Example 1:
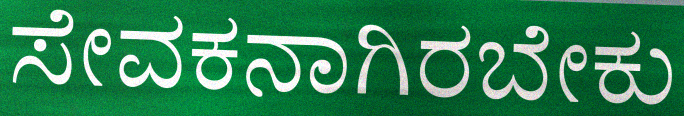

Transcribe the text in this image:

ಸೇವಕನಾಗಿರಬೇಕು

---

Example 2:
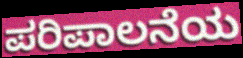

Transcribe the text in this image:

ಪರಿಪಾಲನೆಯ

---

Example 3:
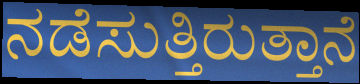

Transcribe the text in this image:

ನಡೆಸುತ್ತಿರುತ್ತಾನೆ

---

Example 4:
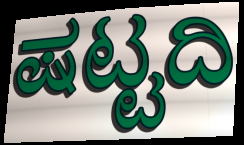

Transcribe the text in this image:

ಷಟ್ಟದಿ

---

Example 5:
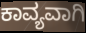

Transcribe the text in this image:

ಕಾವ್ಯವಾಗಿ